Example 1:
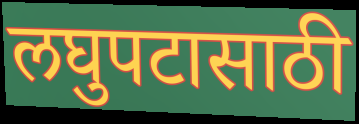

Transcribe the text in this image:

लघुपटासाठी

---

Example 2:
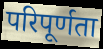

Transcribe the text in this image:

परिपूर्णता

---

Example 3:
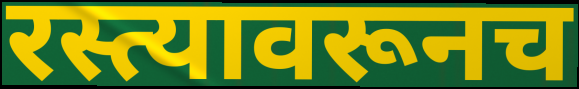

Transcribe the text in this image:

रस्त्यावरूनच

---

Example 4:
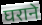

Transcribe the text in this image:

घराने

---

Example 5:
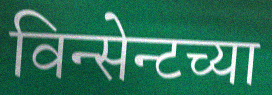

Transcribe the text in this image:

विन्सेन्टच्या